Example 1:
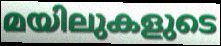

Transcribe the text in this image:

മയിലുകളുടെ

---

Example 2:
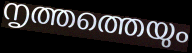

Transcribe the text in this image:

നൃത്തത്തെയും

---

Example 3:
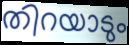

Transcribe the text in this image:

തിറയാടും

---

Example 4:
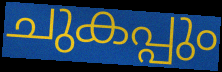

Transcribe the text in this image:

ചുകപ്പും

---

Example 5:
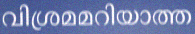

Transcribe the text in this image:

വിശ്രമമറിയാത്ത